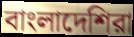
বাংলাদেশিরা